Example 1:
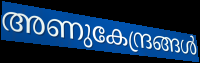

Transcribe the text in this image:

അണുകേന്ദ്രങ്ങൾ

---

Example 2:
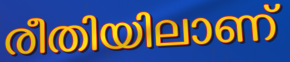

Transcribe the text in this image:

രീതിയിലാണ്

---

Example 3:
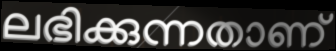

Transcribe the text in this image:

ലഭിക്കുന്നതാണ്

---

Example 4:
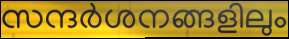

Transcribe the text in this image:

സന്ദർശനങ്ങളിലും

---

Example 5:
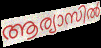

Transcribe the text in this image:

ആര്യാസിൽ